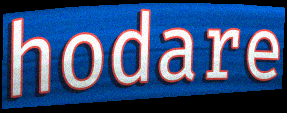
hodare